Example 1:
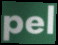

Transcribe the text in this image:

pel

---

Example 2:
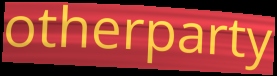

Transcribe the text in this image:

otherparty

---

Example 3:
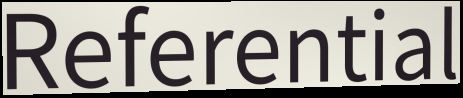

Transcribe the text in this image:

Referential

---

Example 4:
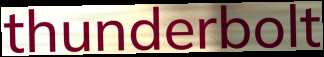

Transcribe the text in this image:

thunderbolt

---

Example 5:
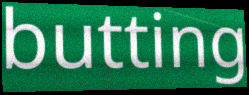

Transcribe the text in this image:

butting